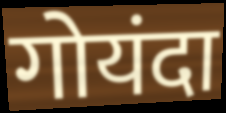
गोयंदा